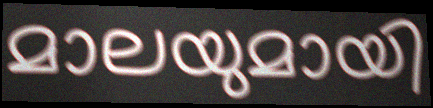
മാലയുമായി